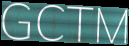
GCTM